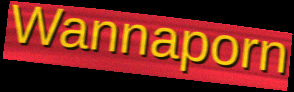
Wannaporn